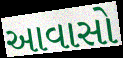
આવાસો